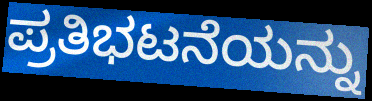
ಪ್ರತಿಭಟನೆಯನ್ನು